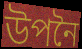
উপনৈ